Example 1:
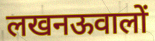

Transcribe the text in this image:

लखनऊवालों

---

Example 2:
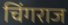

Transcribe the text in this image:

चिंगराज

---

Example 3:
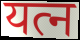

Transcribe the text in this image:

यत्न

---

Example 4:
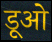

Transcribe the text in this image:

डूओ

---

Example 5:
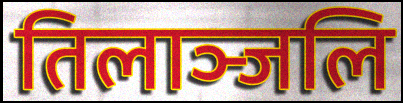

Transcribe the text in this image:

तिलाञ्जलि